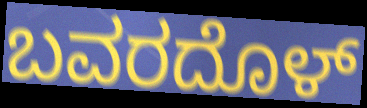
ಬವರದೊಳ್